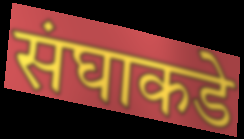
संघाकडे